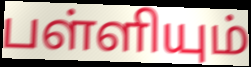
பள்ளியும்